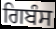
ਗਿਬੰਸ